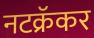
नटक्रॅकर